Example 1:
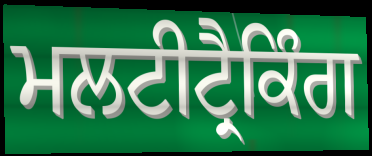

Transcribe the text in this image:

ਮਲਟੀਟ੍ਰੈਕਿੰਗ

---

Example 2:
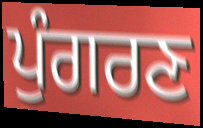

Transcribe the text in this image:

ਪੁੰਗਰਣ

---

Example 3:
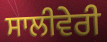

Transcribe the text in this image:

ਸਾਲੀਵੇਰੀ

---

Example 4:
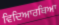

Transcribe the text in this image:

ਵਿਦਿਆਰਥਿਆ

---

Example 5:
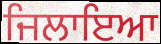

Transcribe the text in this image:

ਜਿਲਾਇਆ